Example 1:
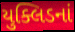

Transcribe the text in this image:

યુક્લિડનાં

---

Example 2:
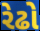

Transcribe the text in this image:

રેઢો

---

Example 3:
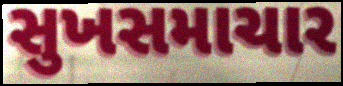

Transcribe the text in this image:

સુખસમાચાર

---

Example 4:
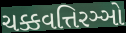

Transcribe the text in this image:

ચક્કવત્તિરઞ્ઞો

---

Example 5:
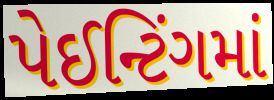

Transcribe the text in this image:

પેઈન્ટિંગમાં